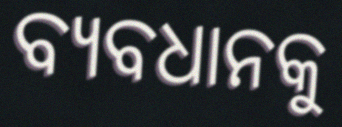
ବ୍ୟବଧାନକୁ